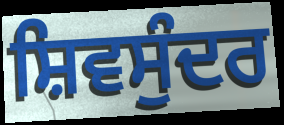
ਸ਼ਿਵਸੁੰਦਰ